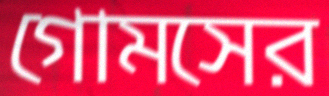
গোমসের